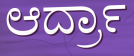
ಆರ್ದ್ರಾ